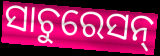
ସାଚୁରେସନ୍